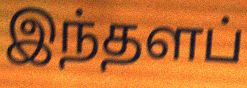
இந்தளப்